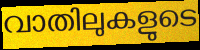
വാതിലുകളുടെ